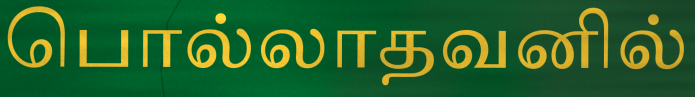
பொல்லாதவனில்